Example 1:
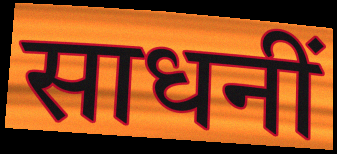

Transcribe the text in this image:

साधनीं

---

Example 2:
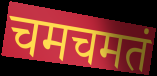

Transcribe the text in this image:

चमचमतं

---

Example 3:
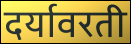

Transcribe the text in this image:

दर्यावरती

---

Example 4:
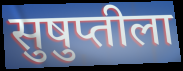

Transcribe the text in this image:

सुषुप्तीला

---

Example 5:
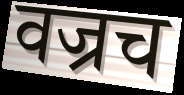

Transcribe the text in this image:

वज्रच